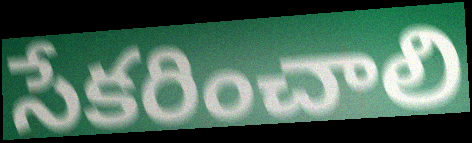
సేకరించాలి